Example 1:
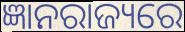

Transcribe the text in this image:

ଜ୍ଞାନରାଜ୍ୟରେ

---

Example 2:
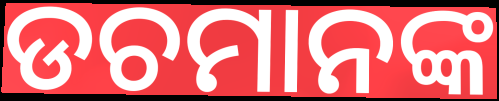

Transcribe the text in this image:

ଡଚମାନଙ୍କ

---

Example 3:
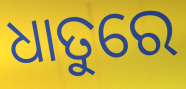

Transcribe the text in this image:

ଧାତୁରେ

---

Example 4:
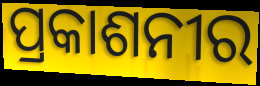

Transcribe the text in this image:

ପ୍ରକାଶନୀର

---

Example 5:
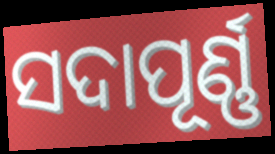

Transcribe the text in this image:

ସଦାପୂର୍ଣ୍ଣ